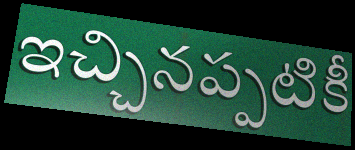
ఇచ్చినప్పటికీ